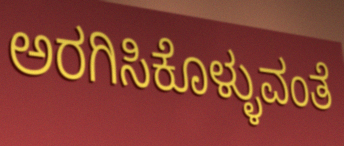
ಅರಗಿಸಿಕೊಳ್ಳುವಂತೆ